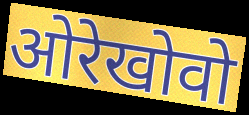
ओरेखोवो